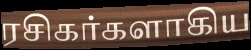
ரசிகர்களாகிய